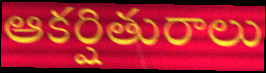
ఆకర్షితురాలు